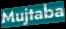
Mujtaba